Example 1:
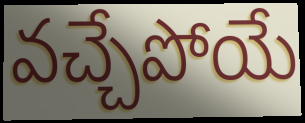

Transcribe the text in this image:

వచ్చేపోయే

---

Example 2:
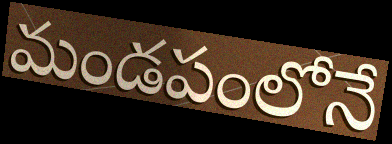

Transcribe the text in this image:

మండపంలోనే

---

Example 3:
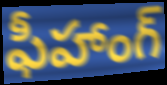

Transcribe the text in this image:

ఫీహాంగ్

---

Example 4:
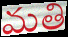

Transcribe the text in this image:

మతి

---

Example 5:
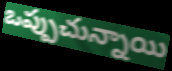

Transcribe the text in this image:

ఒప్పుచున్నాయి